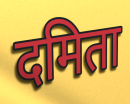
दमिता